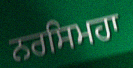
ਨਰਸਿਮਹਾ